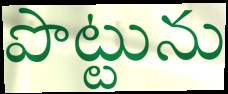
పొట్టును